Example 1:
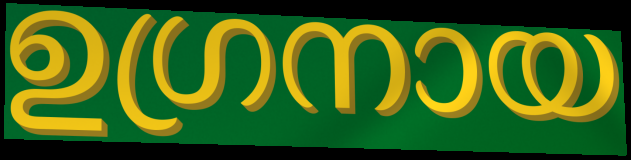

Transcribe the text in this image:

ഉഗ്രനായ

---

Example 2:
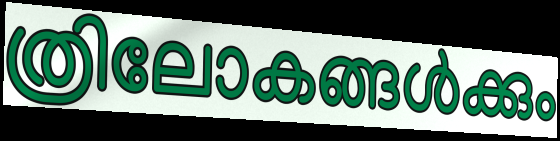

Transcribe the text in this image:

ത്രിലോകങ്ങൾക്കും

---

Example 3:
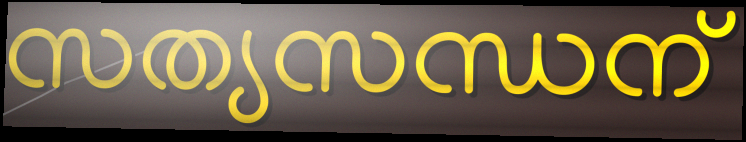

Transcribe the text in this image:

സത്യസന്ധന്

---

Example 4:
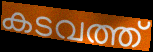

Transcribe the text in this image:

കടവത്ത്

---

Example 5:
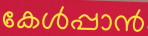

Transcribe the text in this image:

കേൾപ്പാൻ